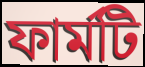
ফার্মটি